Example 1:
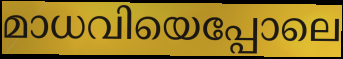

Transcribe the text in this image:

മാധവിയെപ്പോലെ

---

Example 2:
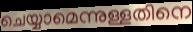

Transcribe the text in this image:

ചെയ്യാമെന്നുള്ളതിനെ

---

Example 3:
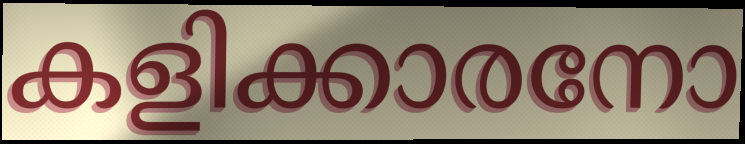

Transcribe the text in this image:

കളിക്കാരനോ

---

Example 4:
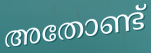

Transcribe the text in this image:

അതോണ്ട്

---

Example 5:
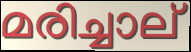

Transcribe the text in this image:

മരിച്ചാല്